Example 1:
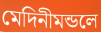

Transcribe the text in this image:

মেদিনীমন্ডলে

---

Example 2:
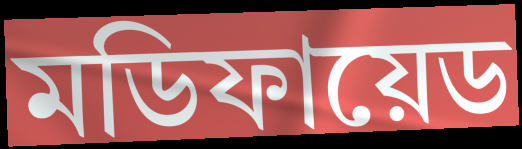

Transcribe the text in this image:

মডিফায়েড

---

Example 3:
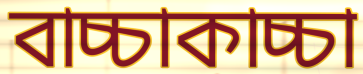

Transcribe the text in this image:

বাচ্চাকাচ্চা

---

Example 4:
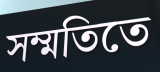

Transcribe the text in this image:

সম্মতিতে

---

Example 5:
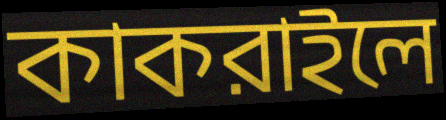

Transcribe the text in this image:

কাকরাইলে